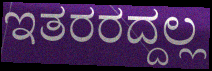
ಇತರರದ್ದಲ್ಲ